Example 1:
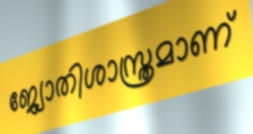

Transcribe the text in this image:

ജ്യോതിശാസ്ത്രമാണ്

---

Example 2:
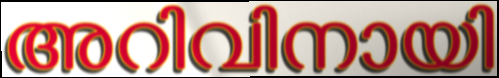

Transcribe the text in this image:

അറിവിനായി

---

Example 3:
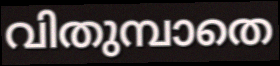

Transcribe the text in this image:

വിതുമ്പാതെ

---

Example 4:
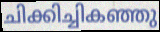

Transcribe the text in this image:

ചിക്കിച്ചികഞ്ഞു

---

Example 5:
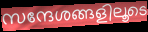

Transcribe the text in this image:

സന്ദേശങ്ങളിലൂടെ